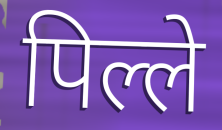
पिल्ले